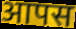
आपस